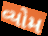
વ્યોમ